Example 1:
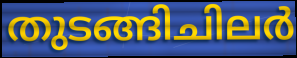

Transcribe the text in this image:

തുടങ്ങിചിലർ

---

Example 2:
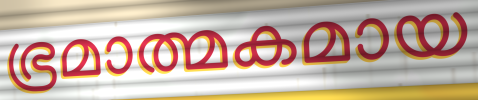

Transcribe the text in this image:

ഭ്രമാത്മകമായ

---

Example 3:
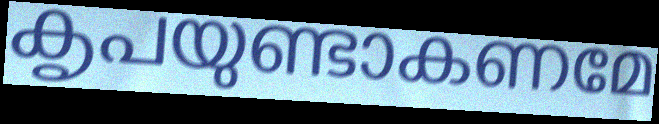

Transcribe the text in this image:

കൃപയുണ്ടാകണമേ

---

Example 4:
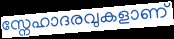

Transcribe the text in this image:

സ്നേഹാദരവുകളാണ്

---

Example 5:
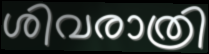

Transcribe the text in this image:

ശിവരാത്രി